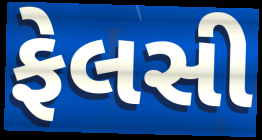
ફેલસી